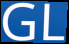
GL